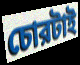
চোরটাই